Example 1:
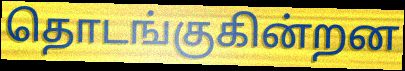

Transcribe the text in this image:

தொடங்குகின்றன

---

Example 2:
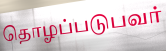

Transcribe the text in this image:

தொழப்படுபவர்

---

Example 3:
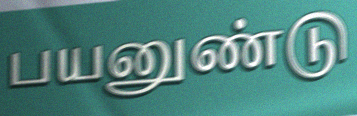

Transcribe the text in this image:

பயனுண்டு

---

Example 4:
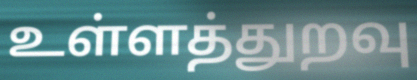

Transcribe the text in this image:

உள்ளத்துறவு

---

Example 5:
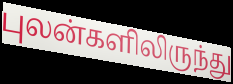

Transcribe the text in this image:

புலன்களிலிருந்து